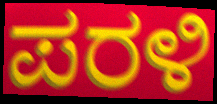
ಪರಳಿ